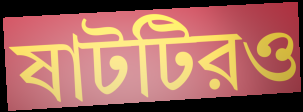
ষাটটিরও